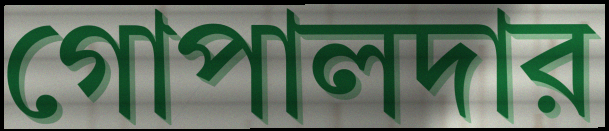
গোপালদার